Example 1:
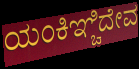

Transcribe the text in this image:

ಯಂಕಿಞ್ಚಿದೇವ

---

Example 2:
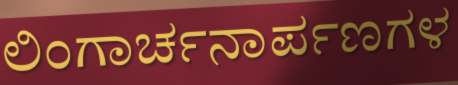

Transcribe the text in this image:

ಲಿಂಗಾರ್ಚನಾರ್ಪಣಗಳ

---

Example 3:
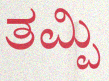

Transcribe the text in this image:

ತಮ್ಪಿ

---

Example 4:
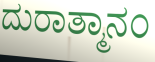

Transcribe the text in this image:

ದುರಾತ್ಮಾನಂ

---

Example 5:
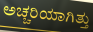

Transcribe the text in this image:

ಅಚ್ಚರಿಯಾಗಿತ್ತು